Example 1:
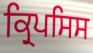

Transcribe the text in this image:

ਕ੍ਰਿਪਸਿਸ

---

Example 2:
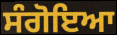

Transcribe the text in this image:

ਸੰਗੋਇਆ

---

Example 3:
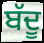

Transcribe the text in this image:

ਬੱਦੂ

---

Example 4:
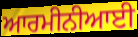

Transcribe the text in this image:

ਆਰਮੀਨੀਆਈ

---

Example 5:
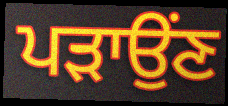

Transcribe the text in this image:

ਪੜਾਉਂਣ